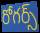
రోగర్స్